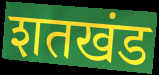
शतखंड